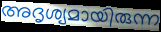
അദൃശ്യമായിരുന്ന